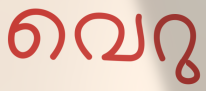
വെറു